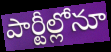
పార్టీల్లోనూ